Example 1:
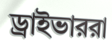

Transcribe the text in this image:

ড্রাইভাররা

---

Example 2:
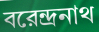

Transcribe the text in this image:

বরেন্দ্রনাথ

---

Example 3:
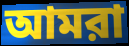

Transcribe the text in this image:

আমরা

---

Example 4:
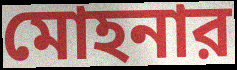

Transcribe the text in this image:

মোহনার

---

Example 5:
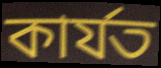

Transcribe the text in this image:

কার্যত